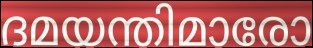
ദമയന്തിമാരോ